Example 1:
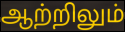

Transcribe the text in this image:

ஆற்றிலும்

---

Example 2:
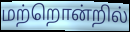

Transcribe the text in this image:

மற்றொன்றில்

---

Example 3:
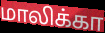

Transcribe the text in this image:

மாலிக்கா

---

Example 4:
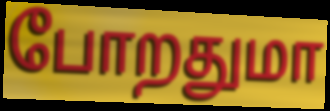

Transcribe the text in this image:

போறதுமா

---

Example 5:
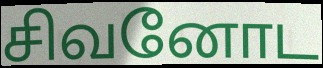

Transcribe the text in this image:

சிவனோட